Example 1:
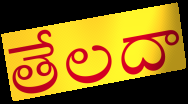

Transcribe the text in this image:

తేలదా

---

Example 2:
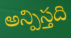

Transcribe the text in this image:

అన్పిస్తది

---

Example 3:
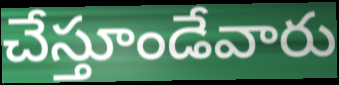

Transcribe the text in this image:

చేస్తూండేవారు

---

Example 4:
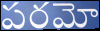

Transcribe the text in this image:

పరమో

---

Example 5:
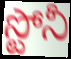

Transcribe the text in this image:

స్టోనీ